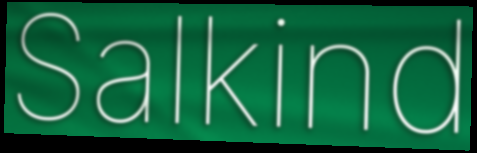
Salkind